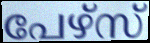
പേഴ്സ്